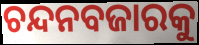
ଚନ୍ଦନବଜାରକୁ